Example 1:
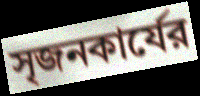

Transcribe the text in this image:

সৃজনকার্যের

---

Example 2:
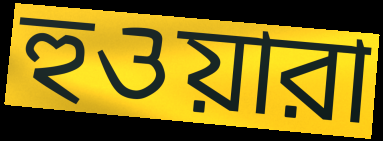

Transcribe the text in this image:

হুওয়ারা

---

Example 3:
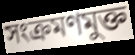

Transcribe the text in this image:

সংক্রমণমুক্ত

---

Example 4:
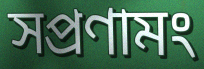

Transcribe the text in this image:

সপ্রণামং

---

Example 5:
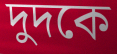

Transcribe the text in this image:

দুদকে